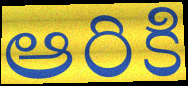
ఆరికి